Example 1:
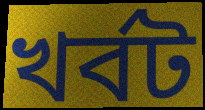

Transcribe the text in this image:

খর্বট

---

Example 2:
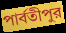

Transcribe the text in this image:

পার্বতীপুর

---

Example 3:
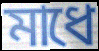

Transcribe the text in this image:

মাধে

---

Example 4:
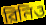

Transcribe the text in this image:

রিনিও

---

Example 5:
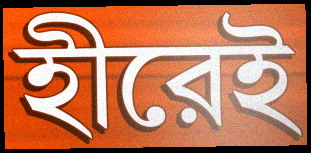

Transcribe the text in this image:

হীরেই